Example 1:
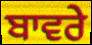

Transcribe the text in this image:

ਬਾਵਰੇ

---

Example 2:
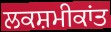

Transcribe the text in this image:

ਲਕਸ਼ਮੀਕਾਂਤ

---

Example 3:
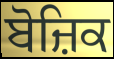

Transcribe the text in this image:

ਬੋਜ਼ਿਕ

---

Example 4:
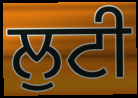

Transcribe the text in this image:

ਲੁਟੀ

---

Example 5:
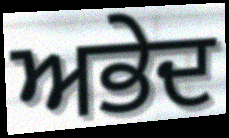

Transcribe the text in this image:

ਅਭੇਦ